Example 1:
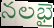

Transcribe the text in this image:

నలభై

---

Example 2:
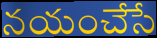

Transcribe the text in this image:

నయంచేసే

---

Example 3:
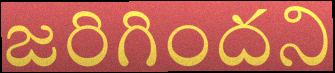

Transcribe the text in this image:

జరిగిందని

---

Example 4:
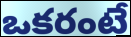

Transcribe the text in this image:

ఒకరంటే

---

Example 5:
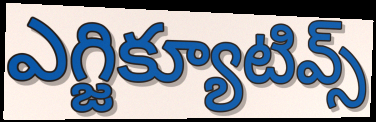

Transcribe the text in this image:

ఎగ్జిక్యూటివ్స్